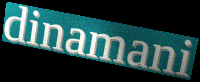
dinamani